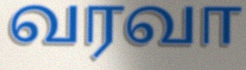
வரவா